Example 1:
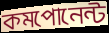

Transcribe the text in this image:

কমপোনেন্ট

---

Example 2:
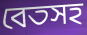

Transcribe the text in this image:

বেতসহ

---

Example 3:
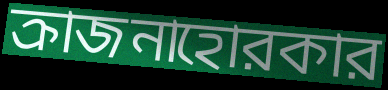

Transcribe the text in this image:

ক্রাজনাহোরকার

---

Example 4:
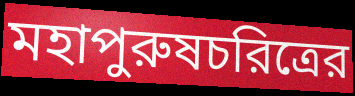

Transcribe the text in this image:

মহাপুরুষচরিত্রের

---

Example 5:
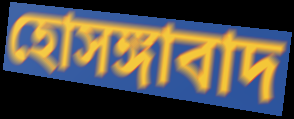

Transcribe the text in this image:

হোসঙ্গাবাদ